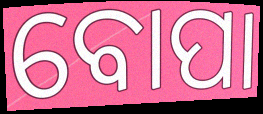
ବୋପା